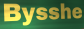
Bysshe